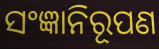
ସଂଜ୍ଞାନିରୂପଣ